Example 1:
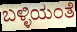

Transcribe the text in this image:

ಬಳ್ಳಿಯಂತೆ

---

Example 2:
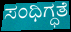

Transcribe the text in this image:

ಸಂಧಿಗ್ಧತೆ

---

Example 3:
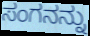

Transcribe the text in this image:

ಸಂಗನನ್ನು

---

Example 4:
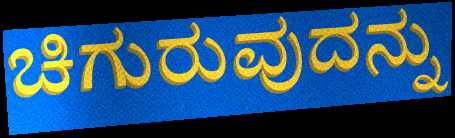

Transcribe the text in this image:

ಚಿಗುರುವುದನ್ನು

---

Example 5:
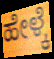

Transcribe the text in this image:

ಹೇಳ್ಕೆ